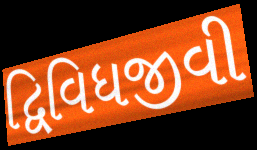
દ્વિવિધજીવી